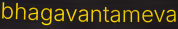
bhagavantameva